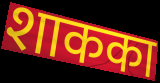
शाकका